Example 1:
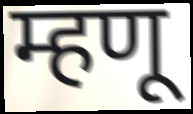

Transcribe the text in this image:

म्हणू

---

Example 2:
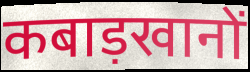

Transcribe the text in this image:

कबाड़खानों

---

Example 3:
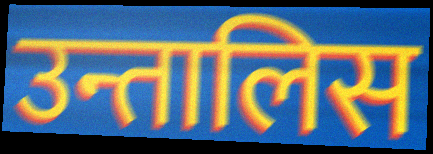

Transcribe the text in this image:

उन्तालिस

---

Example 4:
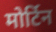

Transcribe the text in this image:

मोर्टिन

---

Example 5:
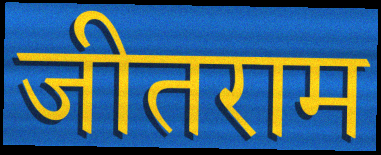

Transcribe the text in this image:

जीतराम